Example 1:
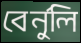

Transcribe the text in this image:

বেৰ্নুলি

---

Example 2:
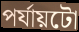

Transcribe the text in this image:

পৰ্যায়টো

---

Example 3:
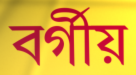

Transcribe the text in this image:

বৰ্গীয়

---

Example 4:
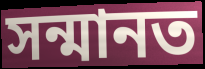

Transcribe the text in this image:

সন্মানত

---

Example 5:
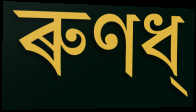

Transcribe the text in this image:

ৰুণধ্